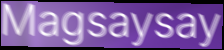
Magsaysay